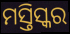
ମସ୍ତିସ୍କର